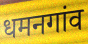
धमनगांव